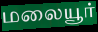
மலையூர்